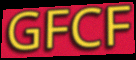
GFCF